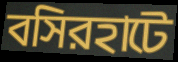
বসিরহাটে